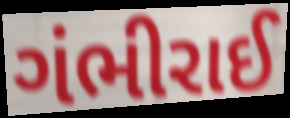
ગંભીરાઈ